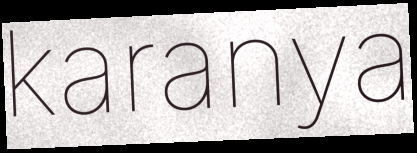
karanya